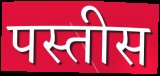
पस्तीस